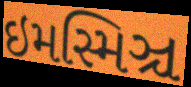
ઇમસ્મિઞ્ચ